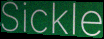
Sickle